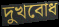
দুখবোধ